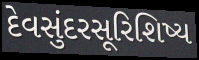
દેવસુંદરસૂરિશિષ્ય